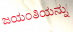
ಜಯಂತಿಯನ್ನು